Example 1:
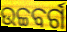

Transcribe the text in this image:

ଉଚ୍ଚବର୍ଗ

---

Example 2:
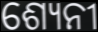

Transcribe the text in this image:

ଶ୍ୟେନୀ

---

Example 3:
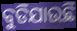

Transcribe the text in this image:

ବୁଡିଯାଉଛି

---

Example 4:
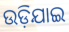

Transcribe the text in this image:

ଉଡ଼ିଯାଇ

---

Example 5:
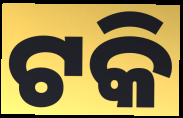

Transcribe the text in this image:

ଟକି